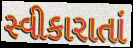
સ્વીકારાતાં